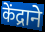
केंद्राने